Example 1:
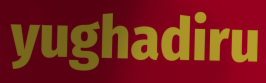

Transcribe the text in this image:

yughadiru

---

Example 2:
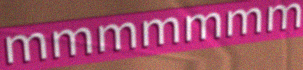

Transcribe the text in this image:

mmmmmmm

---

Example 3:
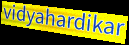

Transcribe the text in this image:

vidyahardikar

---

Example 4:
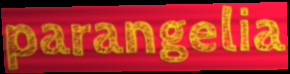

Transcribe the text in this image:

parangelia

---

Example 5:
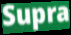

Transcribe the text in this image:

Supra